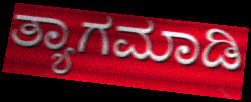
ತ್ಯಾಗಮಾಡಿ